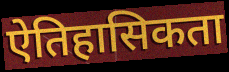
ऐतिहासिकता